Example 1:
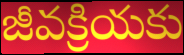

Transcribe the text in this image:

జీవక్రియకు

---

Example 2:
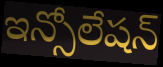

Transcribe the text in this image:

ఇన్సోలేషన్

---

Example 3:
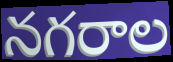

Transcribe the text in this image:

నగరాల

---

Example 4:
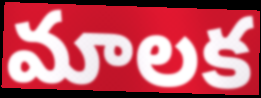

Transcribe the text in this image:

మాలక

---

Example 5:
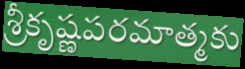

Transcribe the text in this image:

శ్రీకృష్ణపరమాత్మకు